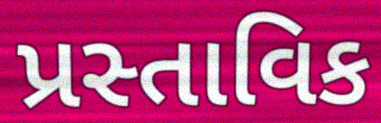
પ્રસ્તાવિક